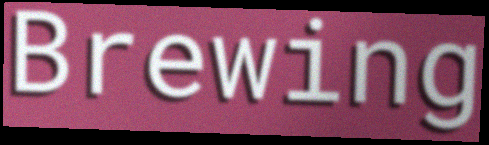
Brewing